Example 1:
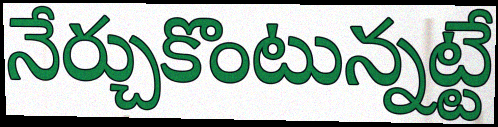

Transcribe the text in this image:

నేర్చుకొంటున్నట్టే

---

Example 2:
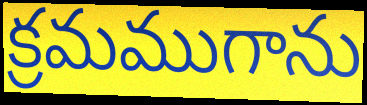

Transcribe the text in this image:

క్రమముగాను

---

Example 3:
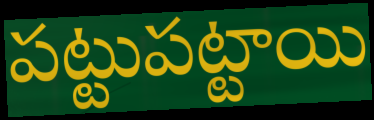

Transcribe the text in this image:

పట్టుపట్టాయి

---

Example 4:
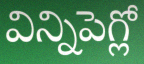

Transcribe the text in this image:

విన్నిపెగ్లో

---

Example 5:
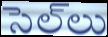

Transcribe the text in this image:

సెల్‌లు